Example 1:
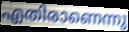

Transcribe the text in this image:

എതിരാണെന്നു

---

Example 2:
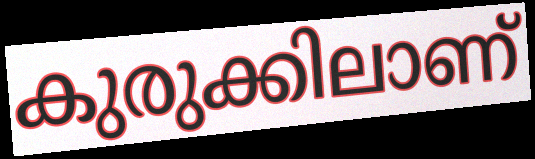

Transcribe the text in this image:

കുരുക്കിലാണ്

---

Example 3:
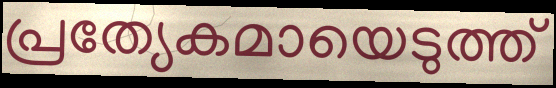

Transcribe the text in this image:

പ്രത്യേകമായെടുത്ത്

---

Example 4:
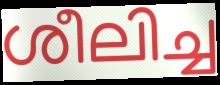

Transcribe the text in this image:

ശീലിച്ച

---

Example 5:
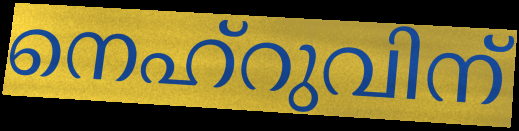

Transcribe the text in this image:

നെഹ്റുവിന്